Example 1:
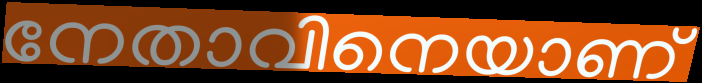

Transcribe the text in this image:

നേതാവിനെയാണ്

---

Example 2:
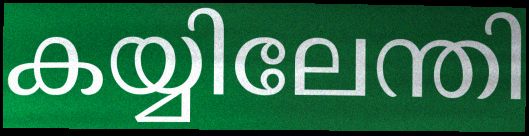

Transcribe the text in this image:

കയ്യിലേന്തി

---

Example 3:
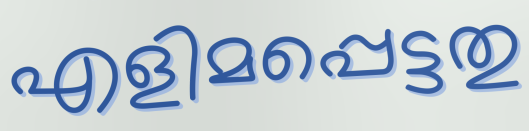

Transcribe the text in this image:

എളിമപ്പെട്ടതു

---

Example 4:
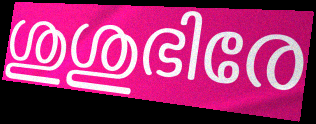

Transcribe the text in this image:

ശുശുഭിരേ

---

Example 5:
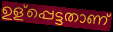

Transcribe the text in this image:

ഉള്പ്പെട്ടതാണ്